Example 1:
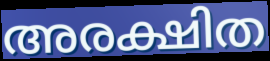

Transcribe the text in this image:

അരക്ഷിത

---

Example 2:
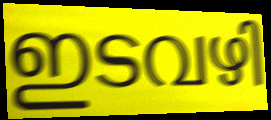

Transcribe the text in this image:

ഇടവഴി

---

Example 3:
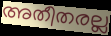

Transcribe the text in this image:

അതീതരല്ല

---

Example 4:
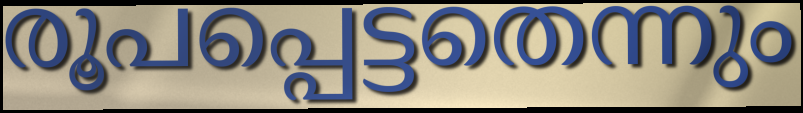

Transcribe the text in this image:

രൂപപ്പെട്ടതെന്നും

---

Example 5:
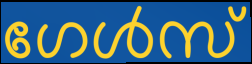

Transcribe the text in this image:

ഗേൾസ്